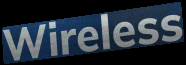
Wireless